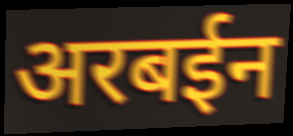
अरबईन